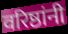
वरिष्ठांनी